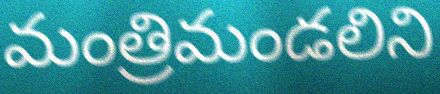
మంత్రిమండలిని